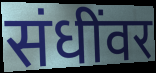
संधींवर